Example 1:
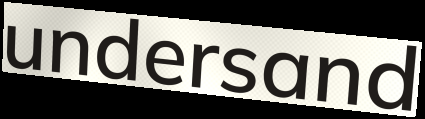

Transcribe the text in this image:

undersand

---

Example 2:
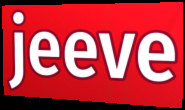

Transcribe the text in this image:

jeeve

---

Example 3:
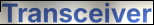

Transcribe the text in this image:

Transceiver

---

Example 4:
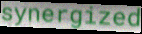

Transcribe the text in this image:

synergized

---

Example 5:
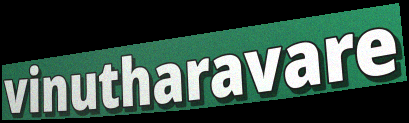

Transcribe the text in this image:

vinutharavare